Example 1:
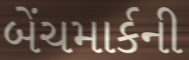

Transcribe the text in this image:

બેંચમાર્કની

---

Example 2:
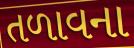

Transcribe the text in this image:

તળાવના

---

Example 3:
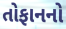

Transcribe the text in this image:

તોફાનનો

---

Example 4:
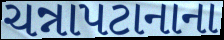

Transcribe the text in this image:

ચન્નાપટાનાના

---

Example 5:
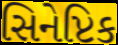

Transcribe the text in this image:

સિનેપ્ટિક